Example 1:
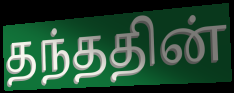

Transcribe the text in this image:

தந்ததின்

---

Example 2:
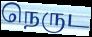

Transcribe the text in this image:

நெருட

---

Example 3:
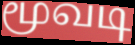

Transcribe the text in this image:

மூவடி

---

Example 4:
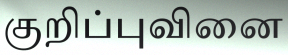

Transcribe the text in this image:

குறிப்புவினை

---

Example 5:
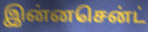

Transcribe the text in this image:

இன்னசென்ட்